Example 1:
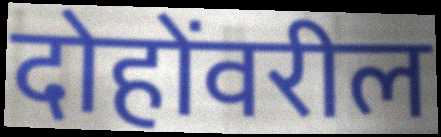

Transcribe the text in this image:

दोहोंवरील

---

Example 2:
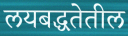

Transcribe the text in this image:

लयबद्धतेतील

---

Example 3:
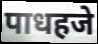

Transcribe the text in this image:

पाधहजे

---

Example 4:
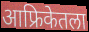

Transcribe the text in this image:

आफ्रिकेतला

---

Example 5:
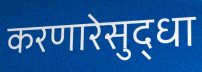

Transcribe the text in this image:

करणारेसुद्धा